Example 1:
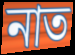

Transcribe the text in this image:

নাত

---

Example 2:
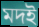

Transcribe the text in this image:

মদই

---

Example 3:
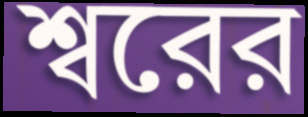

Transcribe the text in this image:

শ্বরের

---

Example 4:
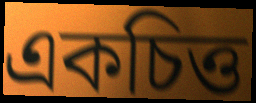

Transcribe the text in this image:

একচিত্ত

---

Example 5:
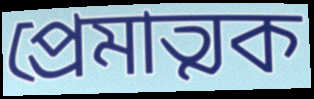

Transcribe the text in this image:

প্রেমাত্মক